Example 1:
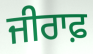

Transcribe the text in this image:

ਜੀਰਾਫ਼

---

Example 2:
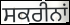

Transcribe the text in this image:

ਸਕਰੀਨਾਂ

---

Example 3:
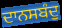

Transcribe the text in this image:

ਦਾਨਸਬੰਦੁ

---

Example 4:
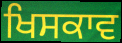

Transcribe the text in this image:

ਖਿਸਕਾਵ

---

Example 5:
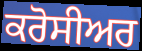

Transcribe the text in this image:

ਕਰੋਸੀਅਰ